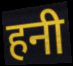
हनी